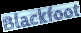
Blackfoot